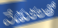
వేడుకలతో